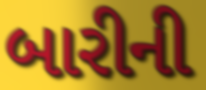
બારીની